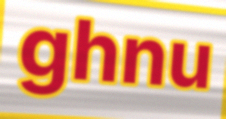
ghnu